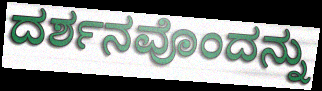
ದರ್ಶನವೊಂದನ್ನು